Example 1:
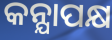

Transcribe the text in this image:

କନ୍ଯାପକ୍ଷ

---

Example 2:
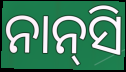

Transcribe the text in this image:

ନାନ୍‌ସି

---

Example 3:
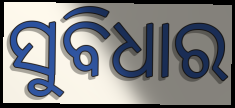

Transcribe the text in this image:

ସୁବିଧାର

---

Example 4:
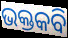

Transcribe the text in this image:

ଭକ୍ତକବି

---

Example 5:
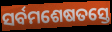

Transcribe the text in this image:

ସର୍ବମଶେଷତସ୍ତେ